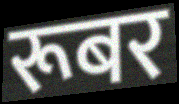
रूबर